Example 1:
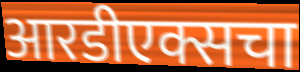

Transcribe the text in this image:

आरडीएक्सचा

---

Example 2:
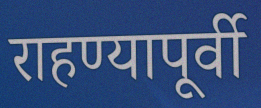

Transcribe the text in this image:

राहण्यापूर्वी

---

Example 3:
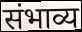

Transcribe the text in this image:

संभाव्य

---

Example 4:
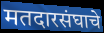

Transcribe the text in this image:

मतदारसंघाचे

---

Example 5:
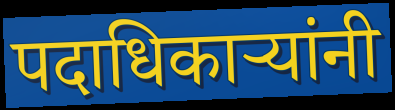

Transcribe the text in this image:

पदाधिकाऱ्यांनी